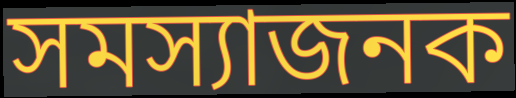
সমস্যাজনক